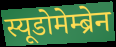
स्यूडोमेम्ब्रेन